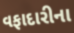
વફાદારીના